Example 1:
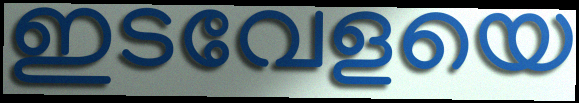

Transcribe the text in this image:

ഇടവേളയെ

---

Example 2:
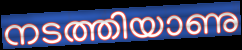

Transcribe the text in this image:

നടത്തിയാണു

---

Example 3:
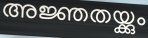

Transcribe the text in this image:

അജ്ഞതയ്ക്കും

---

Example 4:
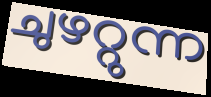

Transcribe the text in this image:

ചുഴറ്റുന്ന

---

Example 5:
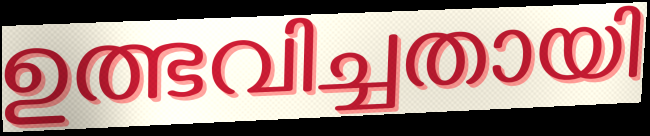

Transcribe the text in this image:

ഉത്ഭവിച്ചതായി